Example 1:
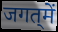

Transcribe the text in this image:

जगत्‌में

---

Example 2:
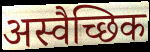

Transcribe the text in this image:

अस्वैच्छिक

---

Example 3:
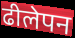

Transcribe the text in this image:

ढीलेपन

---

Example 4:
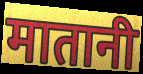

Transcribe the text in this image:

मातानी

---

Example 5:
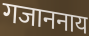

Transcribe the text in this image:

गजाननाय